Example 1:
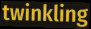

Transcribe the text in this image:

twinkling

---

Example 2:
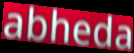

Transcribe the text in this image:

abheda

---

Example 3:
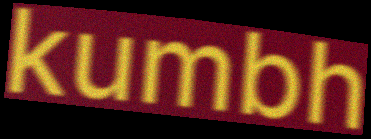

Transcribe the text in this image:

kumbh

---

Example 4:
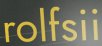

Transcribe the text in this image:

rolfsii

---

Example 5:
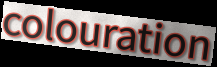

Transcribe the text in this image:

colouration